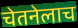
चेतनेलाच